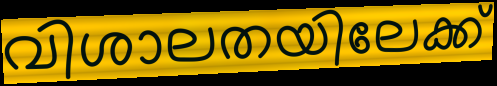
വിശാലതയിലേക്ക്